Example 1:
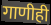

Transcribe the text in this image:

गाणीही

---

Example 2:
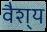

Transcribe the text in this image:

वैश्य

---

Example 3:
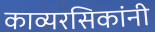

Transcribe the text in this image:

काव्यरसिकांनी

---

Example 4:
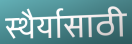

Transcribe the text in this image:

स्थैर्यासाठी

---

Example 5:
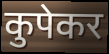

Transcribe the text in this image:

कुपेकर